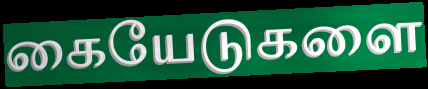
கையேடுகளை